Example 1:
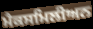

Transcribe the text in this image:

ਮੈਕਸਮਿਲੀਅਨ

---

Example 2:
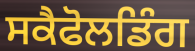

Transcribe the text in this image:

ਸਕੈਫੋਲਡਿੰਗ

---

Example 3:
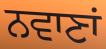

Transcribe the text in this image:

ਨਵਾਣਾਂ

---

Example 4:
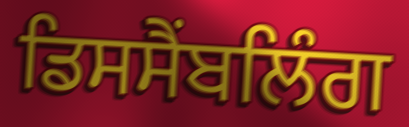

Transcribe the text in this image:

ਡਿਸਸੈਂਬਲਿੰਗ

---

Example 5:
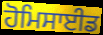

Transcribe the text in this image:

ਹੋਮਿਸਾਈਡ